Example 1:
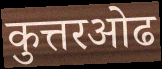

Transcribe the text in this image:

कुत्तरओढ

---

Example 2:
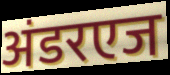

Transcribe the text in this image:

अंडरएज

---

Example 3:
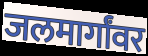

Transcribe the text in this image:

जलमार्गांवर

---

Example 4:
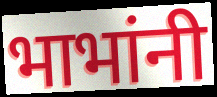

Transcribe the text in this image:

भाभांनी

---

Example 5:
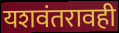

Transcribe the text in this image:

यशवंतरावही